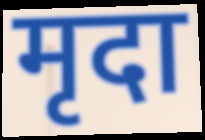
मृदा